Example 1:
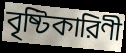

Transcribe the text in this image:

বৃষ্টিকারিণী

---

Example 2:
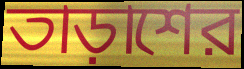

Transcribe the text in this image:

তাড়াশের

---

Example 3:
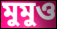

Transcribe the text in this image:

মুমুও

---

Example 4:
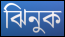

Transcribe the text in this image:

ঝিনুক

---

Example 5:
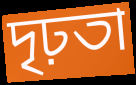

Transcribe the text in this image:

দৃঢ়তা